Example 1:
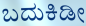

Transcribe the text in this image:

ಬದುಕಿಡೀ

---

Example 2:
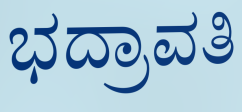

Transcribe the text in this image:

ಭದ್ರಾವತಿ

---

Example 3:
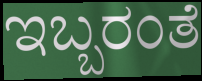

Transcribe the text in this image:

ಇಬ್ಬರಂತೆ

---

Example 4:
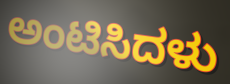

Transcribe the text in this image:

ಅಂಟಿಸಿದಳು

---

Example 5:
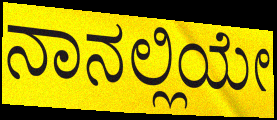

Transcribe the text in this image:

ನಾನಲ್ಲಿಯೇ